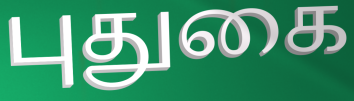
புதுகை